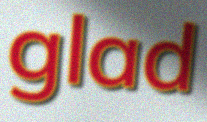
glad